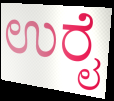
ಉರೈ